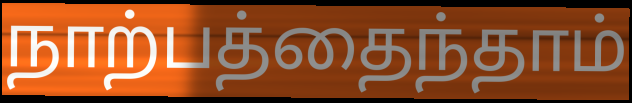
நாற்பத்தைந்தாம்